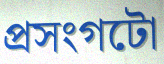
প্ৰসংগটো